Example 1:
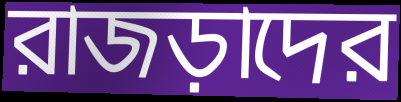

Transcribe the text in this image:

রাজড়াদের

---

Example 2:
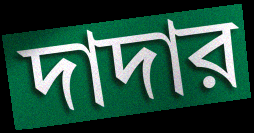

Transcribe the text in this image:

দাদার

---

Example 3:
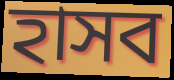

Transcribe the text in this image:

হাসব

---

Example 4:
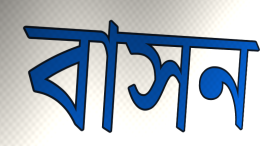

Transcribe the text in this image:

বাসন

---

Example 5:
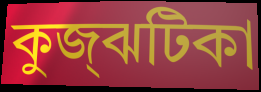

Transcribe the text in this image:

কুজ্‌ঝটিকা